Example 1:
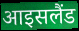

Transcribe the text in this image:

आइसलैंड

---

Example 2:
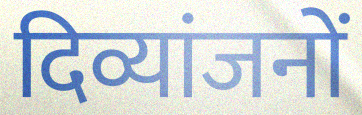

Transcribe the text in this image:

दिव्यांजनों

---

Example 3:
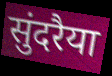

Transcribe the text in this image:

सुंदरैया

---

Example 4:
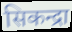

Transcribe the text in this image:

सिकन्द्रा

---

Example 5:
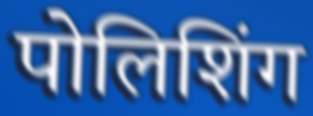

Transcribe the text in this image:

पोलिशिंग